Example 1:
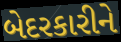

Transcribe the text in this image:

બેદરકારીને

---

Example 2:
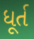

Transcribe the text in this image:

ધૂર્ત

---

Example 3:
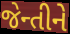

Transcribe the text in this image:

જેન્તીને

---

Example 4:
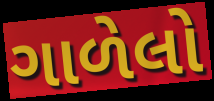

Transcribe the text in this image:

ગાળેલો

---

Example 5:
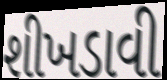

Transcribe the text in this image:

શીખડાવી